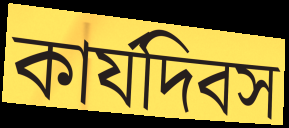
কার্যদিবস